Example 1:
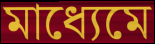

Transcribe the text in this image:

মাধ্যেমে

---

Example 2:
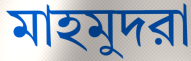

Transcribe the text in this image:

মাহমুদরা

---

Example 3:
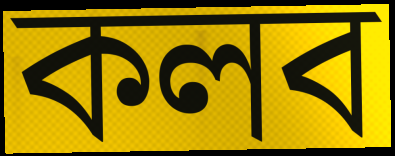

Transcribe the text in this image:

কলব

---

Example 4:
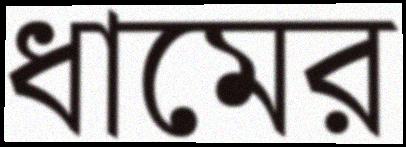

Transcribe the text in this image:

ধামের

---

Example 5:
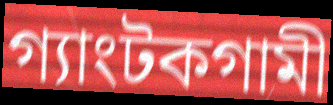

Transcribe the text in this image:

গ্যাংটকগামী